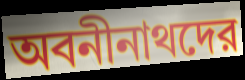
অবনীনাথদের